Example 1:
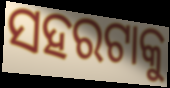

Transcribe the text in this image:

ସହରଟାକୁ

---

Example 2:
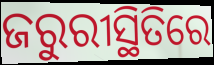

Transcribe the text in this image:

ଜରୁରୀସ୍ଥିତିରେ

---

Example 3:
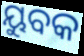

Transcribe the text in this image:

ୟୁବକ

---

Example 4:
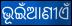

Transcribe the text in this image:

ଭୂଇଁଆଣୀଏଁ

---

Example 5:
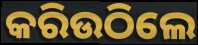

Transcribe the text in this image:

କରିଉଠିଲେ